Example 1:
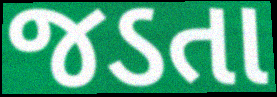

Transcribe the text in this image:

જડતા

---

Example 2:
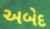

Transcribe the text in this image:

અબેદ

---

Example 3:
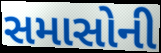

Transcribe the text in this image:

સમાસોની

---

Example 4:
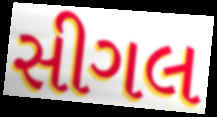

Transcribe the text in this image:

સીગલ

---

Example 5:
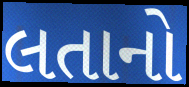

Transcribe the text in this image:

લતાનો